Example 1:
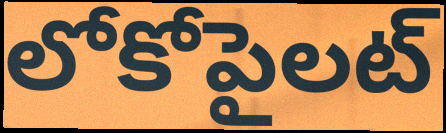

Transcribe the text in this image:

లోకోపైలట్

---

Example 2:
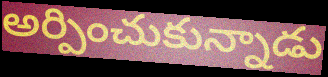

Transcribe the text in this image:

అర్పించుకున్నాడు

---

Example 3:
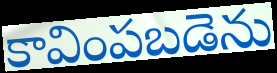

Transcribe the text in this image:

కావింపబడెను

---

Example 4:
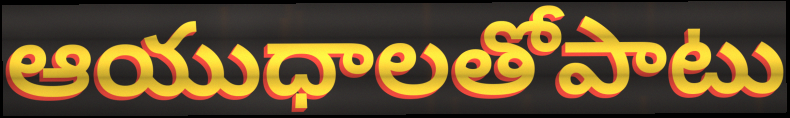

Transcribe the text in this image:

ఆయుధాలతోపాటు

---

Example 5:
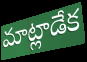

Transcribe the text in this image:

మాట్లాడేక